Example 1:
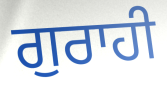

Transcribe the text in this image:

ਗੁਰਾਹੀ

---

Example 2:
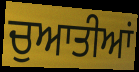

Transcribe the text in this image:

ਚੁਆਤੀਆਂ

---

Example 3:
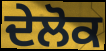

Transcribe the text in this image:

ਦੇਲੋਕ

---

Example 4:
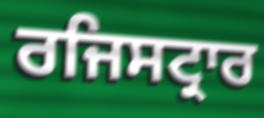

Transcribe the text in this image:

ਰਜਿਸਟ੍ਰਾਰ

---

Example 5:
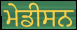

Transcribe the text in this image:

ਮੇਡੀਸਨ